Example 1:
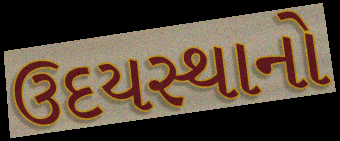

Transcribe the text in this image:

ઉદયસ્થાનો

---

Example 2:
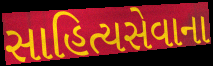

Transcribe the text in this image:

સાહિત્યસેવાના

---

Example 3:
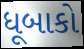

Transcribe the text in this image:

ધૂબાકો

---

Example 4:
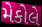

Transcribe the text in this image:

મેકોલે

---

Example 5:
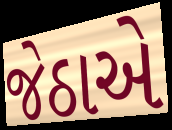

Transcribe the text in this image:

જેઠાએ